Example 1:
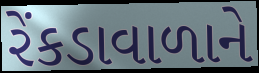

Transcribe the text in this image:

રેંકડાવાળાને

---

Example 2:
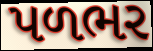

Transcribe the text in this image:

પળભર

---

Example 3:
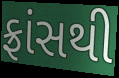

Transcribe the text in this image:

ફ્રાંસથી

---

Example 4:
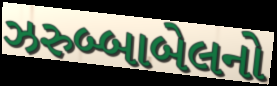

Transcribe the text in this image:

ઝરુબ્બાબેલનો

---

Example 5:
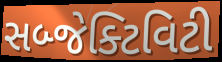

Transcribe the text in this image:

સબ્જેક્ટિવિટી